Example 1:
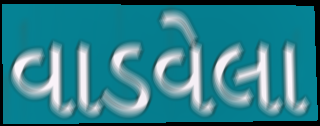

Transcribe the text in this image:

વાડવેલા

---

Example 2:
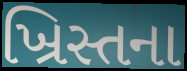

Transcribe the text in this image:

ખ્રિસ્તના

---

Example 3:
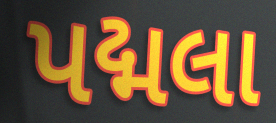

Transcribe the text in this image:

પદ્મલા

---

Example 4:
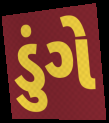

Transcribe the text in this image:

ડુંગે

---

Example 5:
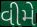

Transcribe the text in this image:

વીમે